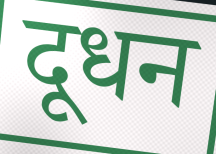
दूधन